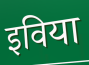
इविया